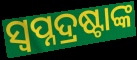
ସ୍ୱପ୍ନଦ୍ରଷ୍ଟାଙ୍କ